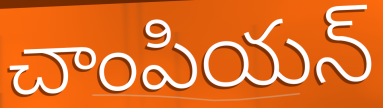
చాంపియన్